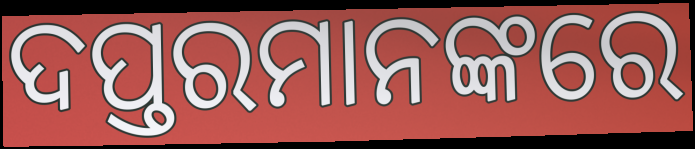
ଦପ୍ତରମାନଙ୍କରେ